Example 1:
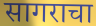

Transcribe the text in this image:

सागराचा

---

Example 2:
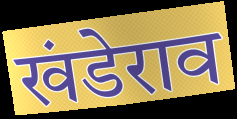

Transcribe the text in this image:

खंडेराव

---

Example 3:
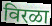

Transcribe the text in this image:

विरळा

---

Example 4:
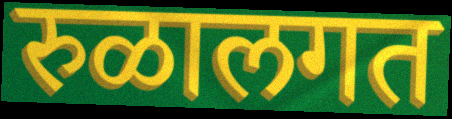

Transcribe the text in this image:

रुळालगत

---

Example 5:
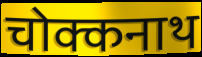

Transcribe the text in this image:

चोक्कनाथ